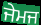
ਜੇਮਜ